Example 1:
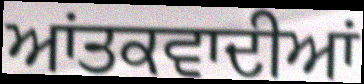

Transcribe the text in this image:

ਆਂਤਕਵਾਦੀਆਂ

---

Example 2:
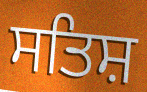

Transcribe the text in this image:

ਸਤਿਸ਼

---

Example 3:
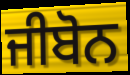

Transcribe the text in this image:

ਜੀਬੋਨ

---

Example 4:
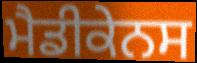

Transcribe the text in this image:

ਮੈਡੀਕੇਨਸ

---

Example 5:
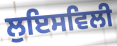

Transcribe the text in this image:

ਲੁਇਸਵਿਲੀ